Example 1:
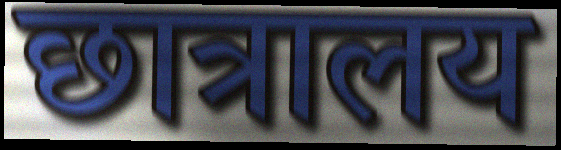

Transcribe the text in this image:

छात्रालय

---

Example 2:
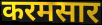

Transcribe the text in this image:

करमसार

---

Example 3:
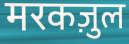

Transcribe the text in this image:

मरकज़ुल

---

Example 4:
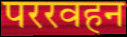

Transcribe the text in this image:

पररवहन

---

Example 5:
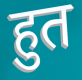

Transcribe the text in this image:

हुत